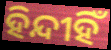
ହିନ୍ଦୀହିଁ